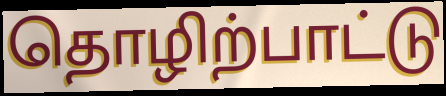
தொழிற்பாட்டு